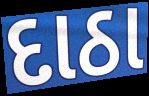
દાઠા